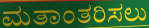
ಮತಾಂತರಿಸಲು